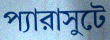
প্যারাসুটে